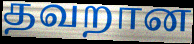
தவறான